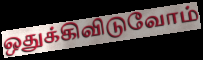
ஒதுக்கிவிடுவோம்